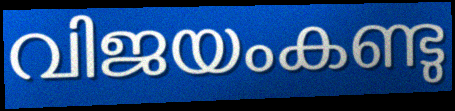
വിജയംകണ്ടു